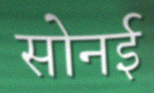
सोनई